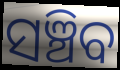
ସଞ୍ଚିବ